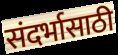
संदर्भासाठी